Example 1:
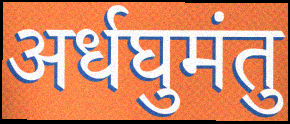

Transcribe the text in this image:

अर्धघुमंतु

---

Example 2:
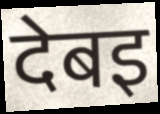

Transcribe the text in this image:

देबइ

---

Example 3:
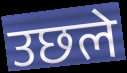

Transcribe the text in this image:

उछले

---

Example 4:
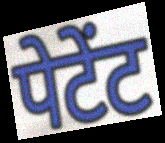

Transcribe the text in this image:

पेटेंट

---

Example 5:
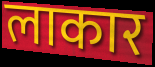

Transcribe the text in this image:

लाकार